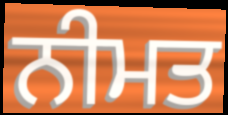
ਨੀਮਤ